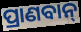
ପ୍ରାଣବାନ୍